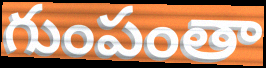
గుంపంతా